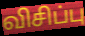
விசிப்பு